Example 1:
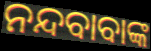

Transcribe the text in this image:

ନନ୍ଦବାବାଙ୍କ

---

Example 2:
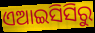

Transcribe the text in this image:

ଏଆଇସିସିରୁ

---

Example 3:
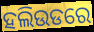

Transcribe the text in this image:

ହଲିଉଡରେ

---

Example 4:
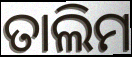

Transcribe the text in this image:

ତାଲିମ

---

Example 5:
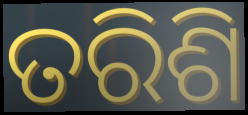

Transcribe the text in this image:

ତରିଶି